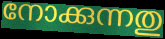
നോക്കുന്നതു